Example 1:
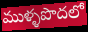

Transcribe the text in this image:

ముళ్ళపొదలో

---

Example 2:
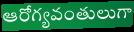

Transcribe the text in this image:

ఆరోగ్యవంతులుగా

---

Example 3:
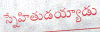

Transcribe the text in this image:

స్నేహితుడయ్యాడు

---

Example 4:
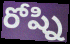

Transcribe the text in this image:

రోష్ని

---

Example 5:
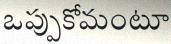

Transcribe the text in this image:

ఒప్పుకోమంటూ